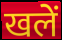
खलें